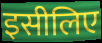
इसीलिए